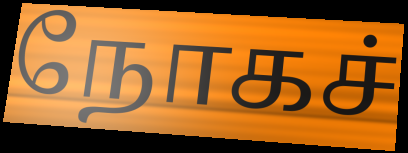
நோகச்